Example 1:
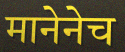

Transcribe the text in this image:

मानेनेच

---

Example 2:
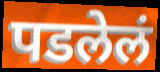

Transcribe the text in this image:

पडलेलं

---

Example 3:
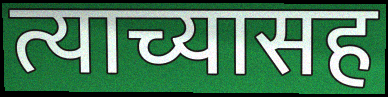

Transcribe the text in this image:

त्याच्यासह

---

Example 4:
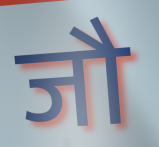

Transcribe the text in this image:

जौ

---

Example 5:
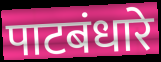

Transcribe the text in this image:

पाटबंधारे